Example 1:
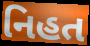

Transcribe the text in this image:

નિહત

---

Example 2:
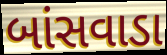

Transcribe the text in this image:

બાંસવાડા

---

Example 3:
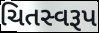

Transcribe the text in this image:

ચિતસ્વરૂપ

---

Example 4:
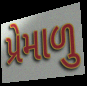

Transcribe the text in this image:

પ્રેમાળુ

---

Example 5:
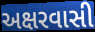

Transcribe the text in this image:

અક્ષરવાસી